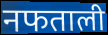
नफताली